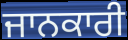
ਜਾਨਕਾਰੀ